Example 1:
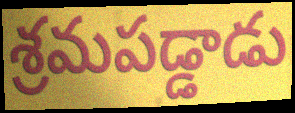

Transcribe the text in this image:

శ్రమపడ్డాడు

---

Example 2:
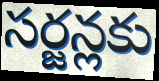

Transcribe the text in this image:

సర్జన్లకు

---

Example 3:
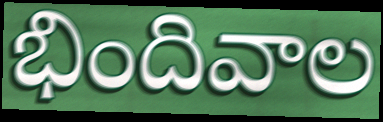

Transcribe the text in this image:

భిందివాల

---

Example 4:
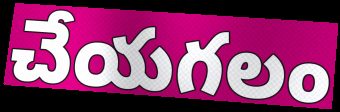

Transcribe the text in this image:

చేయగలం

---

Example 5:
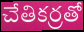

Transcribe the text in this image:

చేతికర్రతో